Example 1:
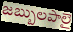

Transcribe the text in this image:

జబ్బులపాలై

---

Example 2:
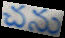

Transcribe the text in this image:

చను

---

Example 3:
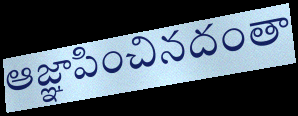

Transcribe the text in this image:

ఆజ్ఞాపించినదంతా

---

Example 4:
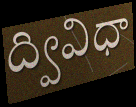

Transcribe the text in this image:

ద్వివిధా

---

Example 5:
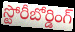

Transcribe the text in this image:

స్టోరీబోర్డింగ్